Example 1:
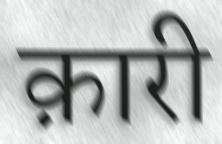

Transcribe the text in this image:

क़ारी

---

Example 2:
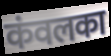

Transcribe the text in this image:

कंवलका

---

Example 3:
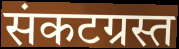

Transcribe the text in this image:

संकटग्रस्त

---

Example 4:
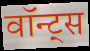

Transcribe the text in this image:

वॉन्ट्स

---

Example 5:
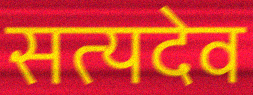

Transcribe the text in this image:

सत्‍यदेव